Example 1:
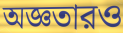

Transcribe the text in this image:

অজ্ঞতারও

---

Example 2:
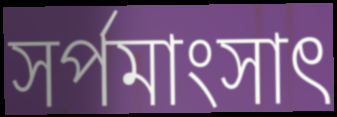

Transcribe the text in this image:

সর্পমাংসাৎ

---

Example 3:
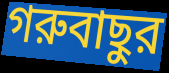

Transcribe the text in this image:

গরুবাছুর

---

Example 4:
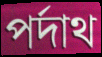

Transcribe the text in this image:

পর্দাথ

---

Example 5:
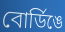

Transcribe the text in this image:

বোর্ডিঙে